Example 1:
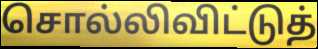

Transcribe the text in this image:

சொல்லிவிட்டுத்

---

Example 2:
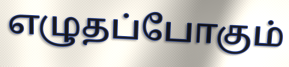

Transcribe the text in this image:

எழுதப்போகும்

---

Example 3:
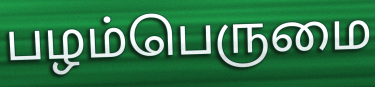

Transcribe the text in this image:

பழம்பெருமை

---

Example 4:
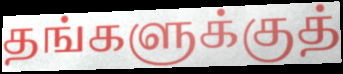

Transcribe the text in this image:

தங்களுக்குத்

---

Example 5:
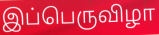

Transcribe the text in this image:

இப்பெருவிழா